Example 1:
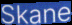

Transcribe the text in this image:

Skane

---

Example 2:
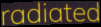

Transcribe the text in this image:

radiated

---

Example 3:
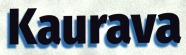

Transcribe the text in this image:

Kaurava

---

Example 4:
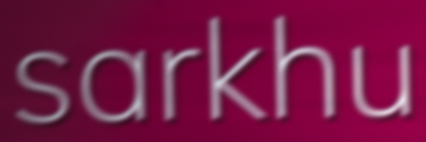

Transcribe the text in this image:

sarkhu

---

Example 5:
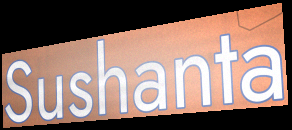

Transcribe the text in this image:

Sushanta